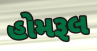
હોમરૂલ